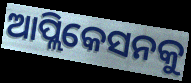
ଆପ୍ଲିକେସନକୁ